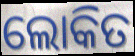
ଲୋକିତ